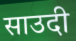
साउदी